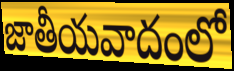
జాతీయవాదంలో